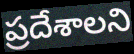
ప్రదేశాలని